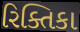
રિક્તિકા